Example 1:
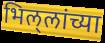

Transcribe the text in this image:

भिल्लांच्या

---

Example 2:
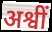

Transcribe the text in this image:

अश्वीं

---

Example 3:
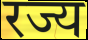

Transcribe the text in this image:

रज्य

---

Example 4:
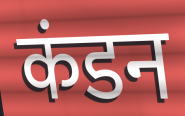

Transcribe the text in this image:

कंडन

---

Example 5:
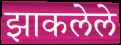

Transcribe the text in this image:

झाकलेले